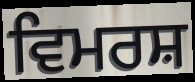
ਵਿਮਰਸ਼